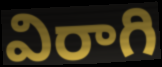
విరాగి